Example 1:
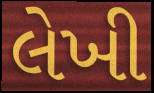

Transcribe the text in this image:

લેખી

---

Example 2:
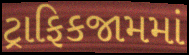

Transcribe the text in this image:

ટ્રાફિકજામમાં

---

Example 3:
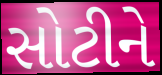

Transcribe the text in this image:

સોટીને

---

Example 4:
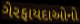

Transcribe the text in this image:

ગેરફાયદાઓનો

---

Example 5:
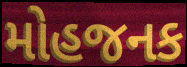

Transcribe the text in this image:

મોહજનક